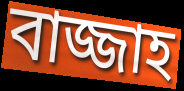
বাজ্জাহ